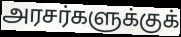
அரசர்களுக்குக்